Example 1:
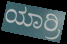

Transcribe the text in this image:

ಯಾರ್ರಿ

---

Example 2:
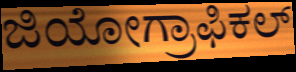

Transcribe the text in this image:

ಜಿಯೋಗ್ರಾಫಿಕಲ್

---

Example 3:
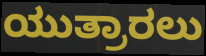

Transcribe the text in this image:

ಯುತ್ರಾರಲು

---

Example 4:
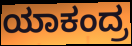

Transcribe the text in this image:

ಯಾಕಂದ್ರ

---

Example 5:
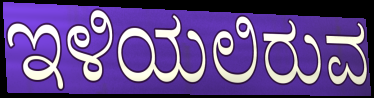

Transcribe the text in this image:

ಇಳಿಯಲಿರುವ